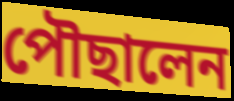
পৌছালেন